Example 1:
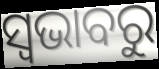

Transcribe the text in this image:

ସ୍ୱଭାବରୁ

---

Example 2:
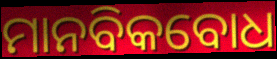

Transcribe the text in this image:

ମାନବିକବୋଧ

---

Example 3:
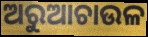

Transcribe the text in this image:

ଅରୁଆଚାଉଳ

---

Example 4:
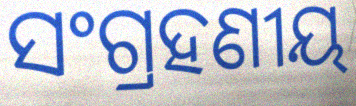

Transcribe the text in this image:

ସଂଗ୍ରହଣୀୟ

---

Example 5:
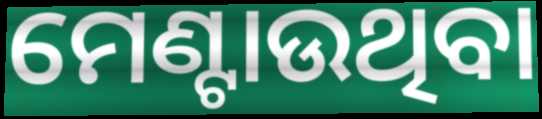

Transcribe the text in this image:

ମେଣ୍ଟାଉଥିବା